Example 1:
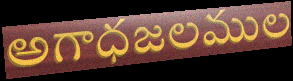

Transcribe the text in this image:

అగాధజలముల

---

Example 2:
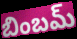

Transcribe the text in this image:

బింబమ్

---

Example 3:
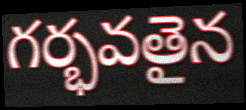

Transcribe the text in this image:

గర్భవతైన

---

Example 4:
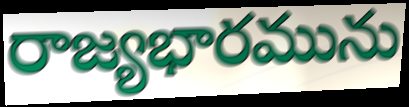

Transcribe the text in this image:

రాజ్యభారమును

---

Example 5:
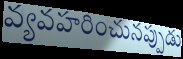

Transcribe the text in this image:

వ్యవహరించునప్పుడు